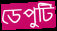
ডেপুটি